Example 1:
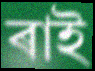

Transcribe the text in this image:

ৰাই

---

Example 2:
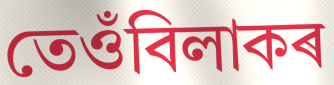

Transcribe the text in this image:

তেওঁবিলাকৰ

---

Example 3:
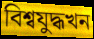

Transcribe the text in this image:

বিশ্বযুদ্ধখন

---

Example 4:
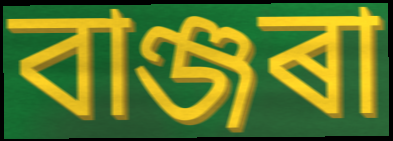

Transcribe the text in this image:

বাঞ্জৰা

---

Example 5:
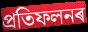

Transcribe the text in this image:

প্ৰতিফলনৰ